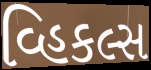
વ્હિકલ્સ